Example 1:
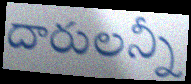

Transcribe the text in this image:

దారులన్నీ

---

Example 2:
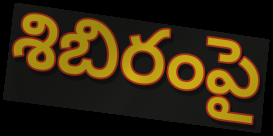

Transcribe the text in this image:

శిబిరంపై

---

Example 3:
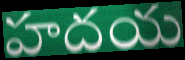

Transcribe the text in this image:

హదయ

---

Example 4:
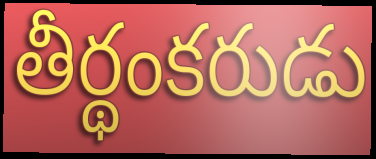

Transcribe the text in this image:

తీర్థంకరుడు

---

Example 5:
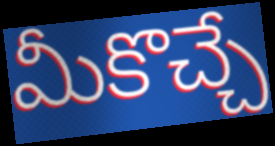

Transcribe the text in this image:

మీకొచ్చే